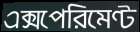
এক্সপেরিমেণ্ট